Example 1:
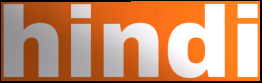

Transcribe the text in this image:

hindi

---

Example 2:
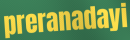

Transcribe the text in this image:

preranadayi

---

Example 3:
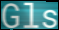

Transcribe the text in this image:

Gls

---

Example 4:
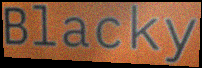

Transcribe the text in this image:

Blacky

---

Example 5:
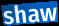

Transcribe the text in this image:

shaw